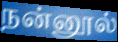
நன்னூல்